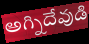
అగ్నిదేవుడి